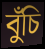
বুঁচি